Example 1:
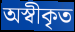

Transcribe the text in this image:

অস্বীকৃত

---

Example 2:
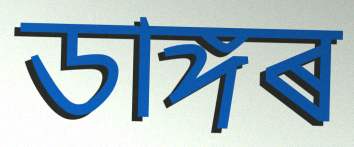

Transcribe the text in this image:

ডাঙ্গৰ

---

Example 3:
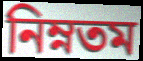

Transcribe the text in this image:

নিম্নতম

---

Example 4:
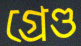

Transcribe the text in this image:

গ্ৰেণ্ড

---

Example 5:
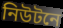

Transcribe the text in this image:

নিউটনে